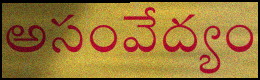
అసంవేద్యం